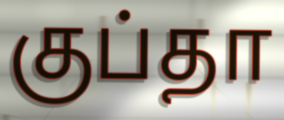
குப்தா